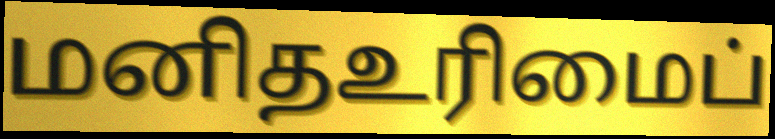
மனிதஉரிமைப்